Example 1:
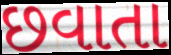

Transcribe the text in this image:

છવાતા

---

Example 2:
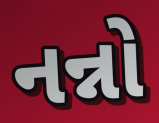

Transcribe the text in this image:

નન્નો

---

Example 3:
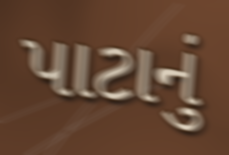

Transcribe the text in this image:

પાટાનું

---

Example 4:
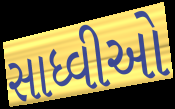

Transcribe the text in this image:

સાધ્વીઓ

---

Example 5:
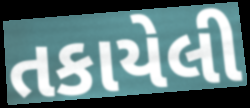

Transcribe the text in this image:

તકાયેલી